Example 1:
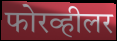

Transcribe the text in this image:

फोरव्हीलर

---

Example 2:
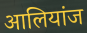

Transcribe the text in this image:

आलियांज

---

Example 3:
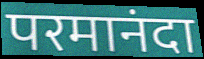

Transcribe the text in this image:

परमानंदा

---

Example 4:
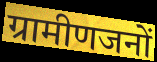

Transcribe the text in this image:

ग्रामीणजनों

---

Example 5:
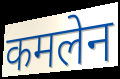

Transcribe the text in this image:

कमलेन